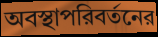
অবস্থাপরিবর্তনের